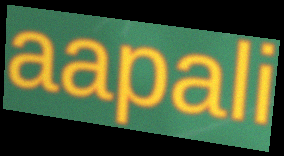
aapali